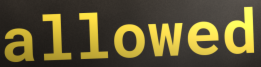
allowed